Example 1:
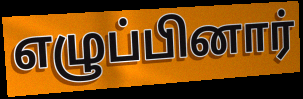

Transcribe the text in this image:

எழுப்பினார்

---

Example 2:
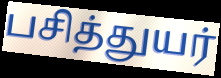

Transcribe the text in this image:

பசித்துயர்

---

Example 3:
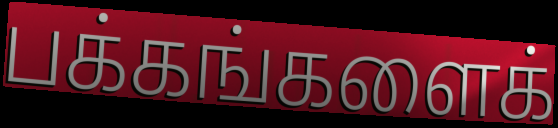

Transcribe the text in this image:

பக்கங்களைக்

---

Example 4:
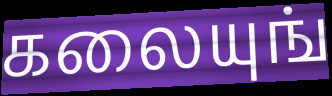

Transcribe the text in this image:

கலையுங்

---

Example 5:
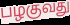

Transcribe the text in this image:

பழகுவது